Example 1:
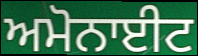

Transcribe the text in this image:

ਅਮੋਨਾਈਟ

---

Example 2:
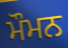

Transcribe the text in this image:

ਮੌਮਨ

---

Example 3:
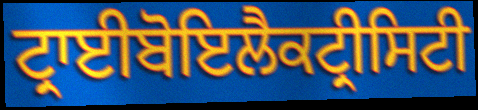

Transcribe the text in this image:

ਟ੍ਰਾਈਬੋਇਲੈਕਟ੍ਰੀਸਿਟੀ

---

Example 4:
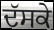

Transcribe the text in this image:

ਦੱਸਕੇ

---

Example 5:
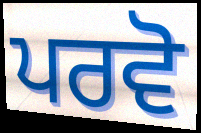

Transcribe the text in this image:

ਪਰਵੋ